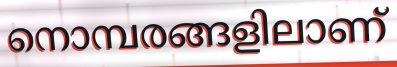
നൊമ്പരങ്ങളിലാണ്